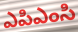
ఎపిఎంసి